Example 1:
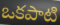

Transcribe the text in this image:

ఒకపాటి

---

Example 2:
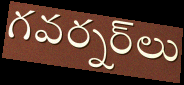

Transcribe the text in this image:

గవర్నర్‌లు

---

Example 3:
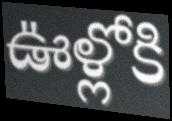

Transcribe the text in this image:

ఊళ్లోకి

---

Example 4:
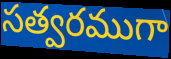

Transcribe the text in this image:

సత్వరముగా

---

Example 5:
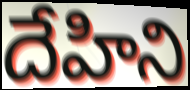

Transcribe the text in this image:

దేహిని